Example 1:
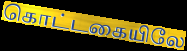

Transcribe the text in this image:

கொட்டகையிலே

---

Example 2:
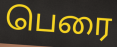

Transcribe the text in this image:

பெரை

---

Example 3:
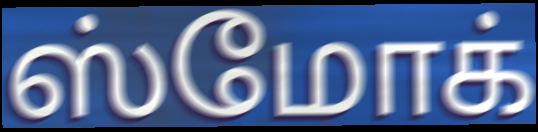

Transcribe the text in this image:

ஸ்மோக்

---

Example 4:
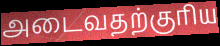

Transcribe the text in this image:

அடைவதற்குரிய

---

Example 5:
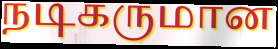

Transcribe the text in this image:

நடிகருமான